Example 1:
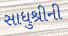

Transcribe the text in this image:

સાધુશ્રીની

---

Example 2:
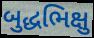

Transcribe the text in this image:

બુદ્ધભિક્ષુ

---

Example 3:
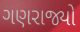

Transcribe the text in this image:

ગણરાજ્યો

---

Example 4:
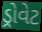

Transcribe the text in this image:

ડ્રોવેટ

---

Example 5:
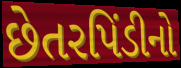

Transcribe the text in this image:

છેતરપિંડીનો